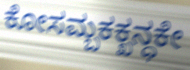
ಕೋಸಮ್ಬಕಕ್ಖನ್ಧಕೇ